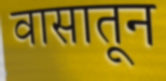
वासातून